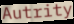
Autrity